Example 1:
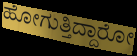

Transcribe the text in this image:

ಹೋಗುತ್ತಿದ್ದಾರೋ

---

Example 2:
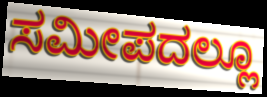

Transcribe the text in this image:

ಸಮೀಪದಲ್ಲೂ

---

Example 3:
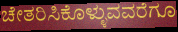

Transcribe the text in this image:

ಚೇತರಿಸಿಕೊಳ್ಳುವವರೆಗೂ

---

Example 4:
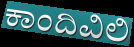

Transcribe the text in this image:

ಕಾಂದಿವಿಲಿ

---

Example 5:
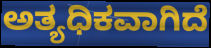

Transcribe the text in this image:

ಅತ್ಯಧಿಕವಾಗಿದೆ